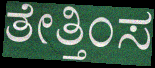
ತೇತ್ತಿಂಸ